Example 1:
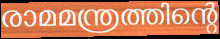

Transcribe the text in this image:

രാമമന്ത്രത്തിന്റെ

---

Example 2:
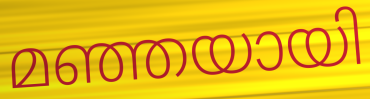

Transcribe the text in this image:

മഞ്ഞയായി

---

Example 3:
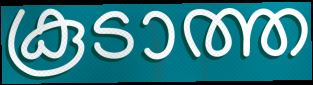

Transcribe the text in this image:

കൂടാത്ത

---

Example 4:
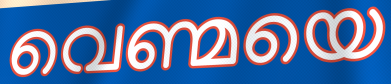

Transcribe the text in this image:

വെണ്മയെ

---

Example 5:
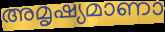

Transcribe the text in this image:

അമൃഷ്യമാണാ